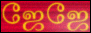
ஜேஜே